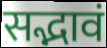
सद्भावं